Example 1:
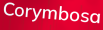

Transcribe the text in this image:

Corymbosa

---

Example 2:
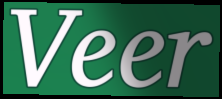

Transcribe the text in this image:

Veer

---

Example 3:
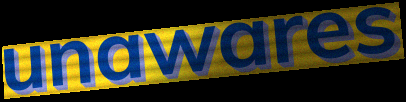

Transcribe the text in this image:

unawares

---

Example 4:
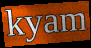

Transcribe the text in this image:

kyam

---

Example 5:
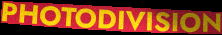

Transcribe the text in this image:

PHOTODIVISION